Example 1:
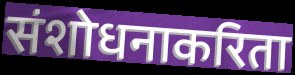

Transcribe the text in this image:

संशोधनाकरिता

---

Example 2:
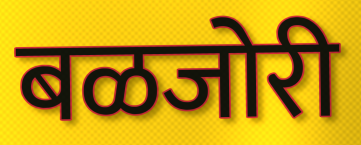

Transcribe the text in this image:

बळजोरी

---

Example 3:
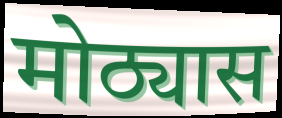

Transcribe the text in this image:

मोठ्यास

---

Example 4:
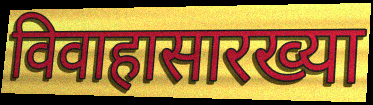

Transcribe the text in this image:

विवाहासारख्या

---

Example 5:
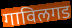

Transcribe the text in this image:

गाविलगड